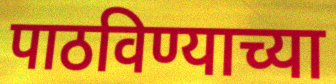
पाठविण्याच्या